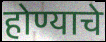
होण्याचे